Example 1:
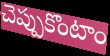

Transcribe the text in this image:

చెప్పుకొంటాం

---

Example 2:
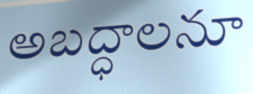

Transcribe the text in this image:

అబద్ధాలనూ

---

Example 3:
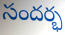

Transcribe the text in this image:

సందర్భ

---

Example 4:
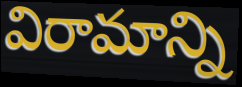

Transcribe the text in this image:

విరామాన్ని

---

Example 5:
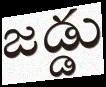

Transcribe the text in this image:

జడ్డు